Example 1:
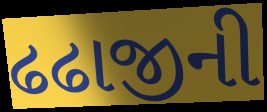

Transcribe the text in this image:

ઢઢાજીની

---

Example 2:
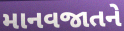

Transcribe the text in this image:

માનવજાતને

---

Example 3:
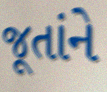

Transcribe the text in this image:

જૂતાંને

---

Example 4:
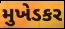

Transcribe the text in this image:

મુખેડકર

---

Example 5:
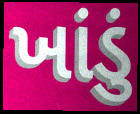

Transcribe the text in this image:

ખાંડું